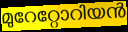
മുറേറ്റോറിയൻ